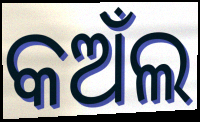
କଅଁଲ